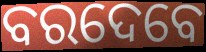
ବରଦେବେ